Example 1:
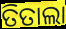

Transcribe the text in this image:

ତିତାଲା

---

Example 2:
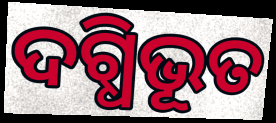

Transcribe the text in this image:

ଦଗ୍ଧିଭୂତ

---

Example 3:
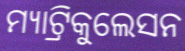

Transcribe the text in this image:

ମ୍ୟାଟ୍ରିକୁଲେସନ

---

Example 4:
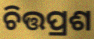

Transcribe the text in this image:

ଚିତ୍ତପ୍ରଶ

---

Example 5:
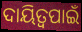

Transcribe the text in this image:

ଦାୟିତ୍ୱପାଇଁ